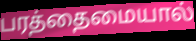
பரத்தைமையால்